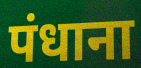
पंधाना